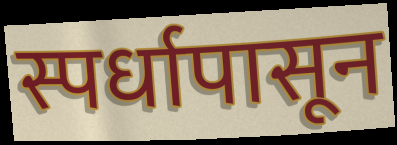
स्पर्धापासून